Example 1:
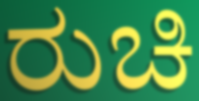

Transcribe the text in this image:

ರುಚಿ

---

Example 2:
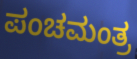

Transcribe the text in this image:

ಪಂಚಮಂತ್ರ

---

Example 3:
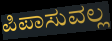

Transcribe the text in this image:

ಪಿಪಾಸುವಲ್ಲ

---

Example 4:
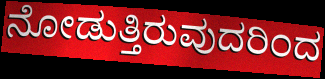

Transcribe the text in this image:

ನೋಡುತ್ತಿರುವುದರಿಂದ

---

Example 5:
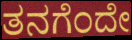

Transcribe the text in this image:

ತನಗೆಂದೇ